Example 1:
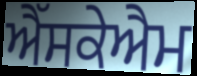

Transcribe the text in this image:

ਐੱਸਕੇਐਮ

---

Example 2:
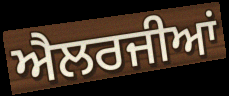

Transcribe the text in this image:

ਐਲਰਜੀਆਂ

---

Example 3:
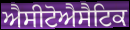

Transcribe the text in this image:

ਐਸੀਟੋਐਸੈਟਿਕ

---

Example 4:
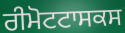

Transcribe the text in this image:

ਰੀਮੋਟਟਾਸਕਸ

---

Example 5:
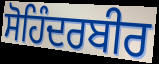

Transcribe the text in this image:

ਸੋਹਿੰਦਰਬੀਰ